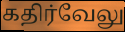
கதிர்வேலு